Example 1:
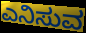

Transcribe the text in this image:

ಎನಿಸುವ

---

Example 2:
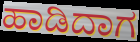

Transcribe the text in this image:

ಹಾಡಿದಾಗ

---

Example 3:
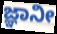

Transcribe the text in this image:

ಜ್ಞಾನೀ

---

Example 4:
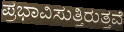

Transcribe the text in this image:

ಪ್ರಭಾವಿಸುತ್ತಿರುತ್ತವೆ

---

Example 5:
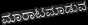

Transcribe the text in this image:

ಮಾರಾಟಮಾಡುವ